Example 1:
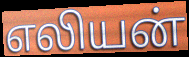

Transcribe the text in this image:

எலியன்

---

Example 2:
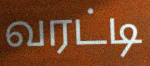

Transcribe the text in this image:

வரட்டி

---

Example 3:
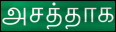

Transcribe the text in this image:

அசத்தாக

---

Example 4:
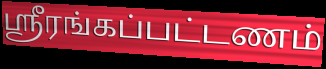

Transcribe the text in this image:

ஸ்ரீரங்கப்பட்டணம்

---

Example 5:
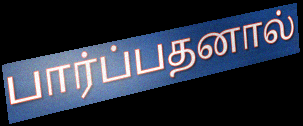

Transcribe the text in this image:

பார்ப்பதனால்